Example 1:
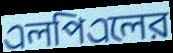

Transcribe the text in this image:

এলপিএলের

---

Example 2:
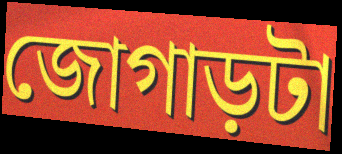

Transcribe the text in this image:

জোগাড়টা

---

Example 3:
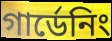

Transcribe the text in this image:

গার্ডেনিং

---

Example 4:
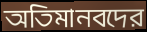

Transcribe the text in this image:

অতিমানবদের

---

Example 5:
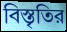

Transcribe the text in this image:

বিস্তৃতির